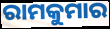
ରାମକୁମାର